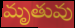
మృతువు